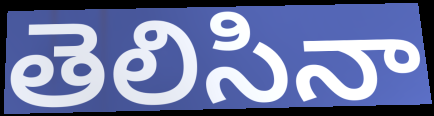
తెలిసినా